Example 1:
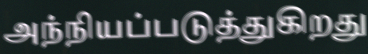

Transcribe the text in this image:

அந்நியப்படுத்துகிறது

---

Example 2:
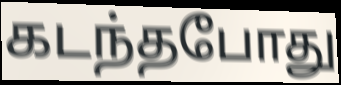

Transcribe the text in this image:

கடந்தபோது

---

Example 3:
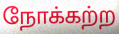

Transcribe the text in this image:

நோக்கற்ற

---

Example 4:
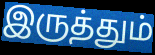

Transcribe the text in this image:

இருத்தும்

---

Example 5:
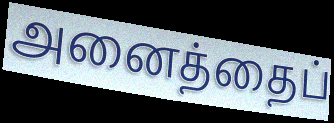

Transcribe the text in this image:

அனைத்தைப்